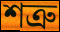
শত্ৰু